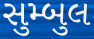
સુમ્બુલ